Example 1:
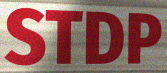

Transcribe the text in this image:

STDP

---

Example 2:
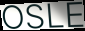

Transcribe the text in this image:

OSLE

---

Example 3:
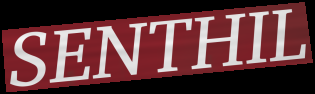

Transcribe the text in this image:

SENTHIL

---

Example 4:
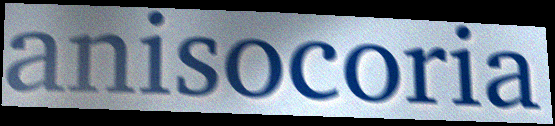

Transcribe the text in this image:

anisocoria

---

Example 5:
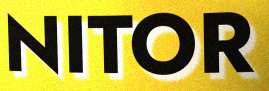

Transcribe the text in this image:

NITOR